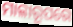
ମାଳାରୂପରେ